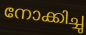
നോക്കിച്ചു